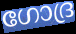
ഗോദ്ര